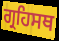
ਗ੍ਰਹਿਸਥ